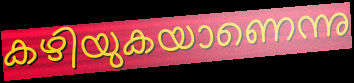
കഴിയുകയാണെന്നു